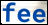
fee